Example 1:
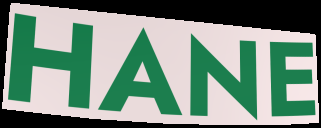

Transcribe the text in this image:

HANE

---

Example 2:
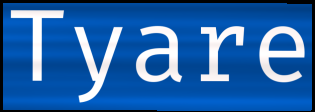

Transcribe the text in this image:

Tyare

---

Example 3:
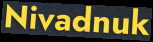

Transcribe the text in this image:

Nivadnuk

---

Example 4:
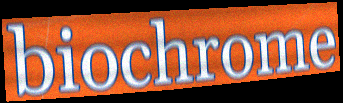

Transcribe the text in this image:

biochrome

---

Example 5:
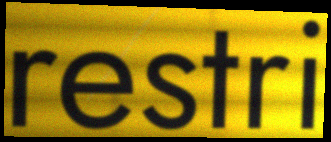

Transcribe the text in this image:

restri